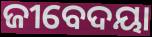
ଜୀବେଦୟା